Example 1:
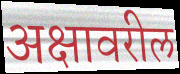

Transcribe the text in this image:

अक्षावरील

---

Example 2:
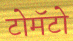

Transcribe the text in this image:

टोमॅटो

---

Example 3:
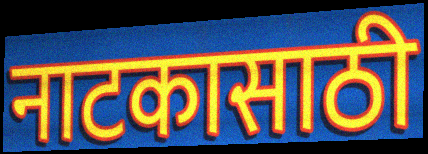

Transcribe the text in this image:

नाटकासाठी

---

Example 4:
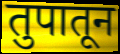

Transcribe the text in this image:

तुपातून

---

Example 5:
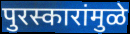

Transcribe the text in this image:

पुरस्कारांमुळे